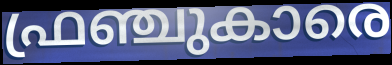
ഫ്രഞ്ചുകാരെ